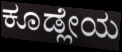
ಕೂಡ್ಲೇಯ